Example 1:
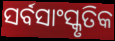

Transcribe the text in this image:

ସର୍ବସାଂସ୍କୃତିକ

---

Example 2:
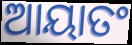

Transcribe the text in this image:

ଆୟାତଂ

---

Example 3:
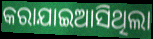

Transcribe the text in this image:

କରାଯାଇଆସିଥିଲା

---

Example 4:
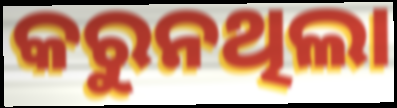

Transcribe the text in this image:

କରୁନଥିଲା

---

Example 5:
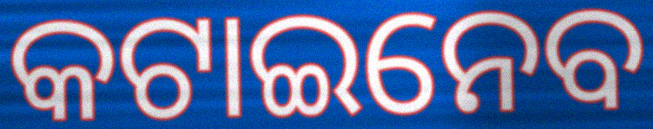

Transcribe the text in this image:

କଟାଇନେବ